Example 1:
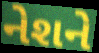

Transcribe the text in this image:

નેશને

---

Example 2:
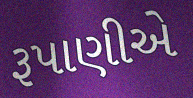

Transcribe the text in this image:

રૂપાણીએ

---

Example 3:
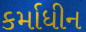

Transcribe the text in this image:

કર્માધીન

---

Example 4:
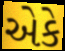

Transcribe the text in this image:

એકે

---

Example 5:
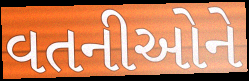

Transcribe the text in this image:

વતનીઓને